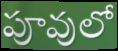
పూవులో